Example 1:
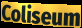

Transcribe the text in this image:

Coliseum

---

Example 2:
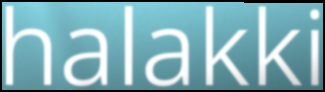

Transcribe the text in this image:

halakki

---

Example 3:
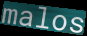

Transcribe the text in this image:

malos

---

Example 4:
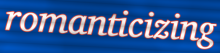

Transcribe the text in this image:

romanticizing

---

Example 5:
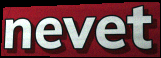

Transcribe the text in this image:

nevet